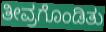
ತೀವ್ರಗೊಂಡಿತು